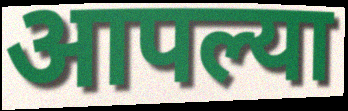
आपल्या